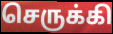
செருக்கி